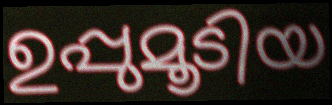
ഉപ്പുമൂടിയ